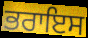
ਭਰਾਇਸ